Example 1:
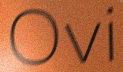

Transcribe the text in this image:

Ovi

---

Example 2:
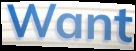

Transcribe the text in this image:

Want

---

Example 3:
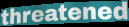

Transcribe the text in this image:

threatened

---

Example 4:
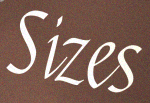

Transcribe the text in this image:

Sizes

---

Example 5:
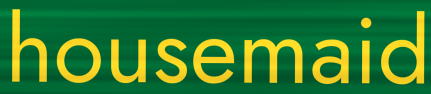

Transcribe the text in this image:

housemaid